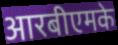
आरबीएमके